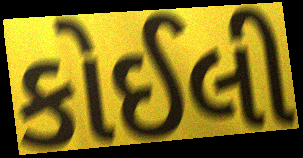
કોઈલી